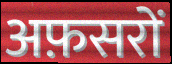
अफ़सरों